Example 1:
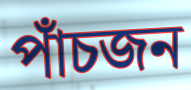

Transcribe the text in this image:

পাঁচজন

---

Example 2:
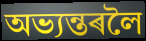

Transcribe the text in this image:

অভ্যন্তৰলৈ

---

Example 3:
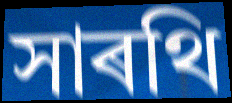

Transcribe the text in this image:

সাৰথি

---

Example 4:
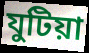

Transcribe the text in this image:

যুটিয়া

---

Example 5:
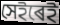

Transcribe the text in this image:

সেইৰেই